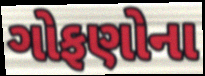
ગોફણોના